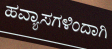
ಹವ್ಯಾಸಗಳಿಂದಾಗಿ